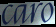
caro